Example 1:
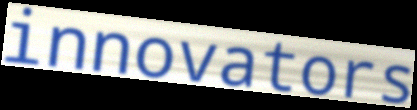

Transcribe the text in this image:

innovators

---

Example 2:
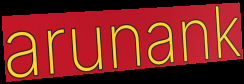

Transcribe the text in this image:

arunank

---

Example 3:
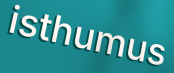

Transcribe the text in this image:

isthumus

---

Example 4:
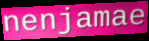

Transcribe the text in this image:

nenjamae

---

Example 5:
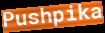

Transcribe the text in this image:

Pushpika